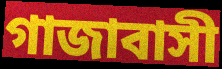
গাজাবাসী